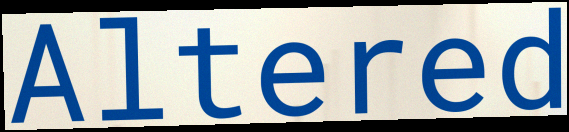
Altered